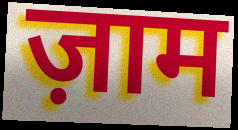
ज़ाम